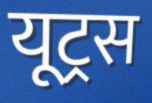
यूट्रस